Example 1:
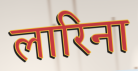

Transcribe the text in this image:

लारिना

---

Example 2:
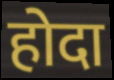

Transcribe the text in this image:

होदा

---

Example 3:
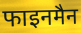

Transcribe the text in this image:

फाइनमैन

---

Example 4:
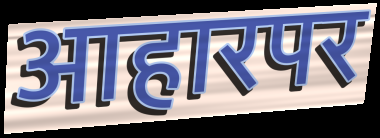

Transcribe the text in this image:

आहारपर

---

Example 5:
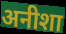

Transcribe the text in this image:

अनीशा